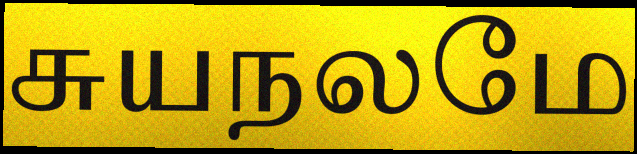
சுயநலமே